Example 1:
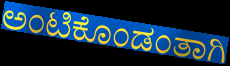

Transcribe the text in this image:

ಅಂಟಿಕೊಂಡಂತಾಗಿ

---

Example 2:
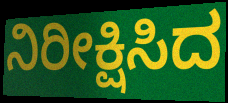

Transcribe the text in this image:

ನಿರೀಕ್ಷಿಸಿದ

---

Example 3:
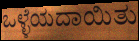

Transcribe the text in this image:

ಒಳ್ಳೆಯದಾಯಿತು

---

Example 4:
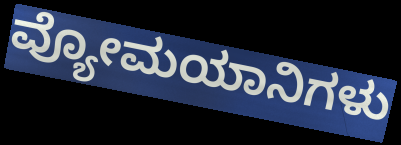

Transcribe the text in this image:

ವ್ಯೋಮಯಾನಿಗಳು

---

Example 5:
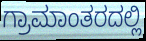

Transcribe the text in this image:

ಗ್ರಾಮಾಂತರದಲ್ಲಿ